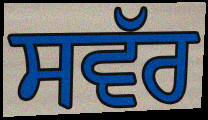
ਸਵੱਰ